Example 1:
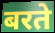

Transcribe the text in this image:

बरते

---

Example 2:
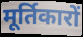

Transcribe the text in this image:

मूर्तिकारों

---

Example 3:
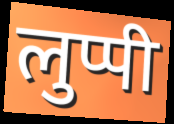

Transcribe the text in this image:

लुप्पी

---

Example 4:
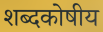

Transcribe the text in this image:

शब्दकोषीय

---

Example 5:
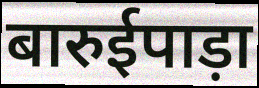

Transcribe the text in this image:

बारुईपाड़ा